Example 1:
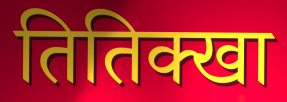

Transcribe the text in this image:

तितिक्खा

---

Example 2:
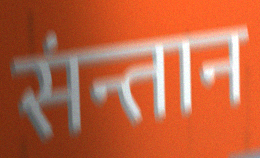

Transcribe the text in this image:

संन्तान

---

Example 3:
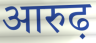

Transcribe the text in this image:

आरुढ़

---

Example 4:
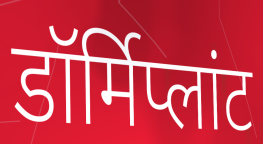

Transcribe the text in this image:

डॉर्मिप्लांट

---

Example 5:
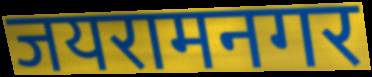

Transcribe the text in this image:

जयरामनगर